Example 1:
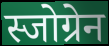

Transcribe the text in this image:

स्जोग्रेन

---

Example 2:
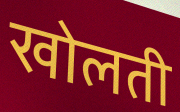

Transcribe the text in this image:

खोलती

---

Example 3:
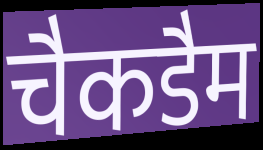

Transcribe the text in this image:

चैकडैम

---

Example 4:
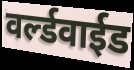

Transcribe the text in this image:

वर्ल्डवाईड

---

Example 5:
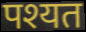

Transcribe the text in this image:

पश्यत